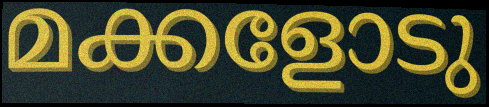
മക്കളോടു